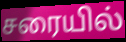
சரையில்